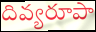
దివ్యరూపా